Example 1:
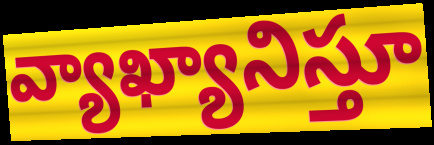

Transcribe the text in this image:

వ్యాఖ్యానిస్తూ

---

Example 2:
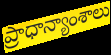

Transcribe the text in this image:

ప్రాధాన్యాంశాలు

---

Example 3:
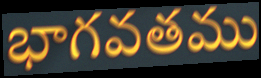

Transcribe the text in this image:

భాగవతము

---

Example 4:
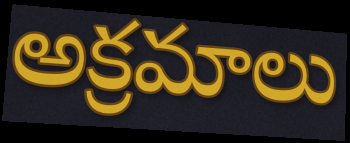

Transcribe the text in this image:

అక్రమాలు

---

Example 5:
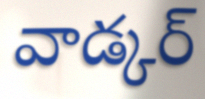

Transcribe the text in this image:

వాడ్కర్